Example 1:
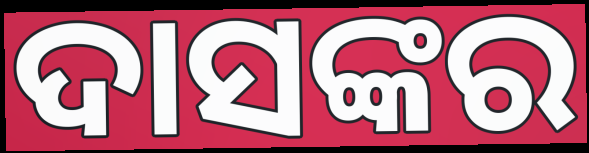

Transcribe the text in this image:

ଦାସଙ୍କର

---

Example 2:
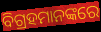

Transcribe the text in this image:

ବିଗ୍ରହମାନଙ୍କରେ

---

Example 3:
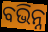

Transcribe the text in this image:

ବଭିନ୍ନ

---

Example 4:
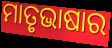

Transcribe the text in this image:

ମାତୃଭାଷାର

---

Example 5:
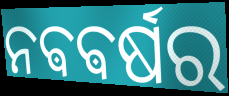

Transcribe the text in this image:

ନଵଵର୍ଷର